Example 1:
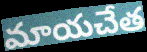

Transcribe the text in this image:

మాయచేత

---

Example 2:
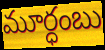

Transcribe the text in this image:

మూర్ధంబు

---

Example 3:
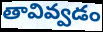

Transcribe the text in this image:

తావివ్వడం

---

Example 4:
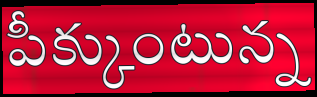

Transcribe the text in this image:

పీక్కుంటున్న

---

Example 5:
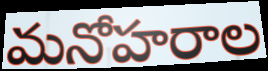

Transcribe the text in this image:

మనోహరాల